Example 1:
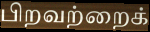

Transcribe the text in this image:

பிறவற்றைக்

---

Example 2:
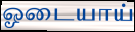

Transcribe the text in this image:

ஓடையாய்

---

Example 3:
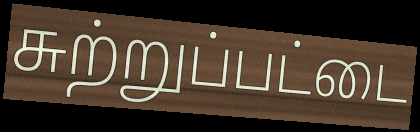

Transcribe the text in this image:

சுற்றுப்பட்டை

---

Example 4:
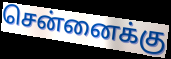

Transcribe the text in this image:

சென்னைக்கு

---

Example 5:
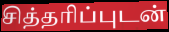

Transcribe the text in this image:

சித்தரிப்புடன்